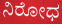
ನಿರೋಧ